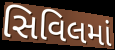
સિવિલમાં